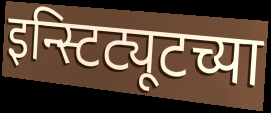
इन्स्टिट्यूटच्या